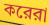
করেরা